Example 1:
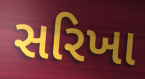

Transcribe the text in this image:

સરિખા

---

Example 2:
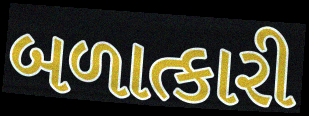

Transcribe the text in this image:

બળાત્કારી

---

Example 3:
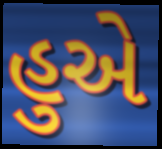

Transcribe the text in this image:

હુએ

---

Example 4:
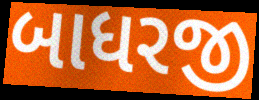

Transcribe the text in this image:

બાધરજી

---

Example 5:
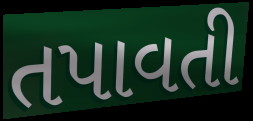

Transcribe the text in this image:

તપાવતી